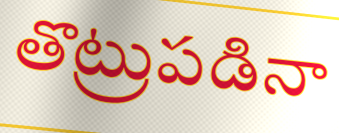
తొట్రుపడినా